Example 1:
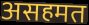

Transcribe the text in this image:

असहमत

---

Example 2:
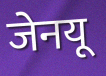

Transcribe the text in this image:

जेनयू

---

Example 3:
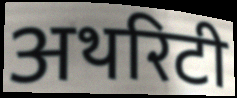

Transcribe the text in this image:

अथरिटी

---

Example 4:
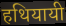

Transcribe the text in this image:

हथियायी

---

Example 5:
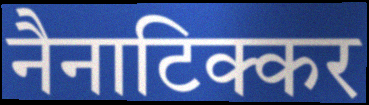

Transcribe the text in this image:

नैनाटिक्कर